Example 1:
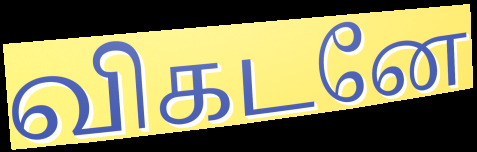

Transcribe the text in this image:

விகடனே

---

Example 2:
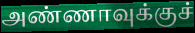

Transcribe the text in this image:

அண்ணாவுக்குச்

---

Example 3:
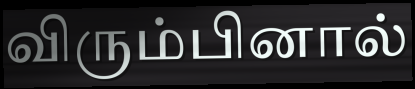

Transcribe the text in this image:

விரும்பினால்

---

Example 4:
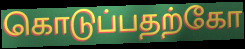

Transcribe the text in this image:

கொடுப்பதற்கோ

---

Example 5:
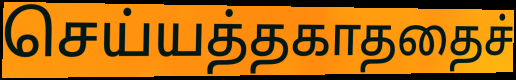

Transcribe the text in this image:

செய்யத்தகாததைச்